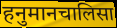
हनुमानचालिसा